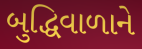
બુદ્ધિવાળાને